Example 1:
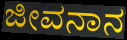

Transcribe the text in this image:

ಜೀವನಾನ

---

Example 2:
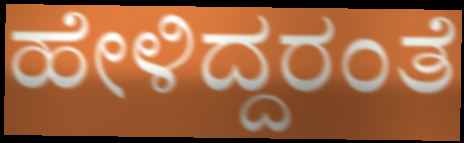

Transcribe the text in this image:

ಹೇಳಿದ್ದರಂತೆ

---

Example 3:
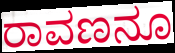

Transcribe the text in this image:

ರಾವಣನೂ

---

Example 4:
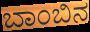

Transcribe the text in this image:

ಬಾಂಬಿನ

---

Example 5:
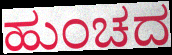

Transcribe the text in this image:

ಹುಂಚದ